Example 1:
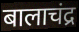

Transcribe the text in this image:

बालाचंद्र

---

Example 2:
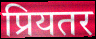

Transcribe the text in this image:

प्रियतर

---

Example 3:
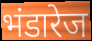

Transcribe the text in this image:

भंडारेज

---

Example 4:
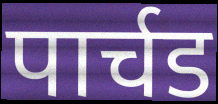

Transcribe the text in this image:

पार्चड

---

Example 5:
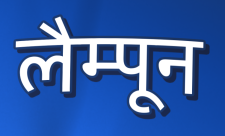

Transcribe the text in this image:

लैम्पून